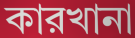
কারখানা